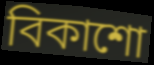
বিকাশো